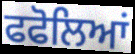
ਫਫੋਲਿਆਂ